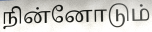
நின்னோடும்